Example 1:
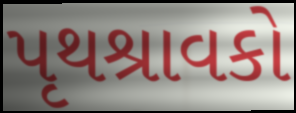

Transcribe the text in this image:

પૃથશ્રાવકો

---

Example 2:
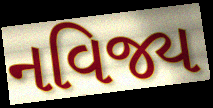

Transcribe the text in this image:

નવિજ્ય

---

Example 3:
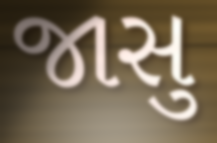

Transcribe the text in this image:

જાસુ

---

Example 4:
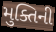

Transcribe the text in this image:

મુક્તિની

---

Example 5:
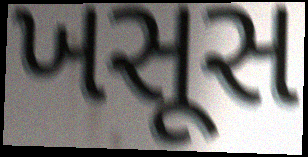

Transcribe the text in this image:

ખસૂસ